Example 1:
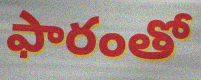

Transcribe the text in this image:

ఫారంతో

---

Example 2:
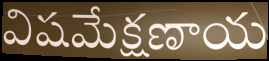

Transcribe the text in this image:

విషమేక్షణాయ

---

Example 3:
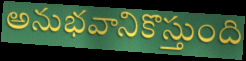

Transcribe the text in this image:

అనుభవానికొస్తుంది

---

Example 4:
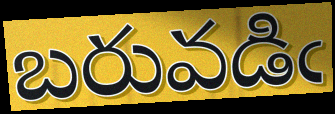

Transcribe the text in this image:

బరువడిఁ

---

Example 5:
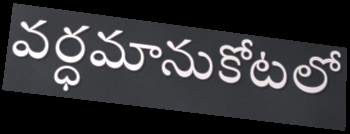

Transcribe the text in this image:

వర్ధమానుకోటలో